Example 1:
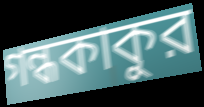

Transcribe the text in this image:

গন্ধকাকুর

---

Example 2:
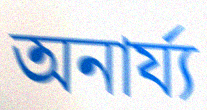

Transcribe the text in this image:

অনার্য্য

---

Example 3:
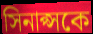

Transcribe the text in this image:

সিনাপ্সকে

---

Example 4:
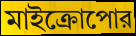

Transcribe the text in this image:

মাইক্রোপোর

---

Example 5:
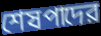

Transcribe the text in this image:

শেষপাদের